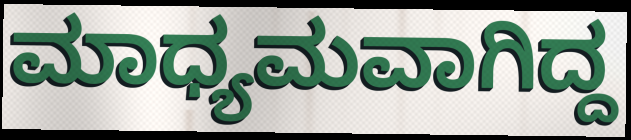
ಮಾಧ್ಯಮವಾಗಿದ್ದ